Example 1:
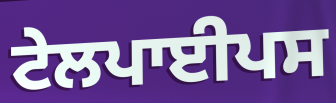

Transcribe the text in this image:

ਟੇਲਪਾਈਪਸ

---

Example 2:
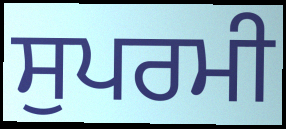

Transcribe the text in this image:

ਸੁਪਰਮੀ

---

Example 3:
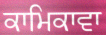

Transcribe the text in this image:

ਕਾਮਿਕਾਵਾ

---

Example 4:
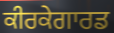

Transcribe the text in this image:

ਕੀਰਕੇਗਾਰਡ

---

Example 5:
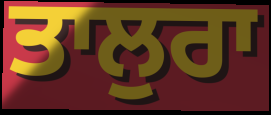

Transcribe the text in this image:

ਤਾਲੁਰਾ